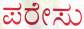
ಪರೇಸು